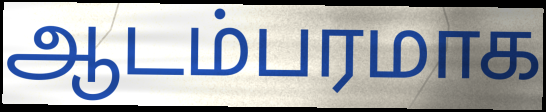
ஆடம்பரமாக